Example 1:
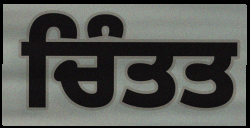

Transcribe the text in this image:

ਚਿੰਤਤ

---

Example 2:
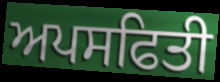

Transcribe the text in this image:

ਅਪਸਫਿਤੀ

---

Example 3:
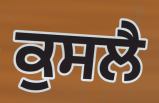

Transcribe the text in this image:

ਕੁਸਲੈ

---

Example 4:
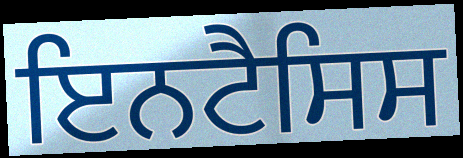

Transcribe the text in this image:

ਇਨਟੈਸਿਸ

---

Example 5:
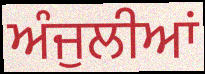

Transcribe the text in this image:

ਅੰਜੁਲੀਆਂ